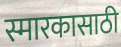
स्मारकासाठी